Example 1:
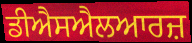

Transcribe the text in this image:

ਡੀਐਸਐਲਆਰਜ਼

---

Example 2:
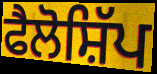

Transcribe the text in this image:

ਫੈਲੋਸ਼ਿੱਪ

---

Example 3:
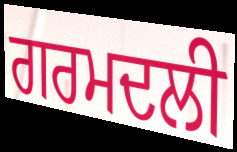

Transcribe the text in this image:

ਗਰਮਦਲੀ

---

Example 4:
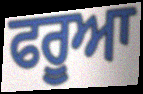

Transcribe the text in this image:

ਫਰੂਆ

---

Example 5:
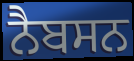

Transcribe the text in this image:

ਨੈਬਸਨ